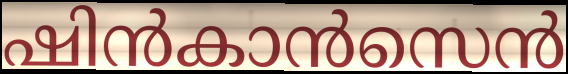
ഷിൻകാൻസെൻ